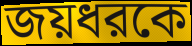
জয়ধরকে